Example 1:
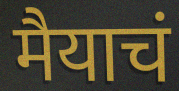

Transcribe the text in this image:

मैयाचं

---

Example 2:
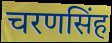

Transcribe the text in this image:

चरणसिंह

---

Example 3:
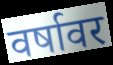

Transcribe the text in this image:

वर्षावर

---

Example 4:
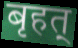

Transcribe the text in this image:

बृहत्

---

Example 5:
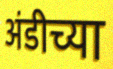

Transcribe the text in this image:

अंडीच्या